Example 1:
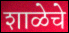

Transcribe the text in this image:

शाळेचे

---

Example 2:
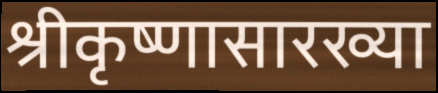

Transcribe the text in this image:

श्रीकृष्णासारख्या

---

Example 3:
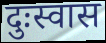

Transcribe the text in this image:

दुःस्वास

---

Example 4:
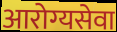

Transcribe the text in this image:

आरोग्यसेवा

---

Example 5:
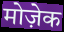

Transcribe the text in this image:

मोज़ेक